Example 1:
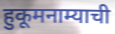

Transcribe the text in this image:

हुकूमनाम्याची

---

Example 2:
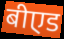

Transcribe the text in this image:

बीएड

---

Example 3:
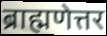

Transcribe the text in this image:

ब्राह्मणेत्तर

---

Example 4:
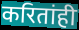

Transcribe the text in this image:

करितांही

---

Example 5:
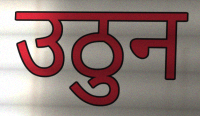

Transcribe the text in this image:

उठुन